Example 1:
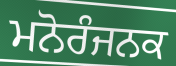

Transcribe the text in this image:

ਮਨੋਰੰਜਨਕ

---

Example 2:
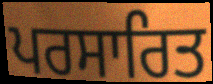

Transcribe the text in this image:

ਪਰਸਾਰਿਤ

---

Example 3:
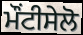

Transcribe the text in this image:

ਮੌਂਟੀਸੇਲੋ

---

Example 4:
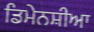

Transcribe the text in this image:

ਡਿਮੇਨਸ਼ੀਆ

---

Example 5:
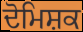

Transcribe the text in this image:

ਦੋਮਿਸ਼ਕ